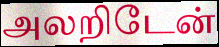
அலறிடேன்